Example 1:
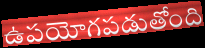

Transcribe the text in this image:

ఉపయోగపడుతోంది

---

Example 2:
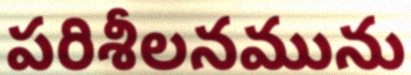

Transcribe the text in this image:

పరిశీలనమును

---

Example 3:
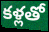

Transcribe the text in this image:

కళ్లతో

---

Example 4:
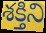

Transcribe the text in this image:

శక్తిని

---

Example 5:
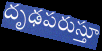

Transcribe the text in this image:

దృఢపరుస్తూ